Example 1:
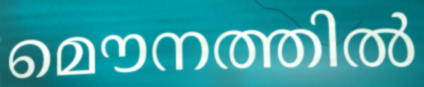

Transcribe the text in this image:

മൌനത്തിൽ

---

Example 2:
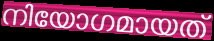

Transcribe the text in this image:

നിയോഗമായത്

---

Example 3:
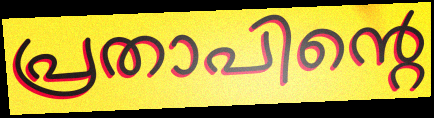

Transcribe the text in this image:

പ്രതാപിന്റെ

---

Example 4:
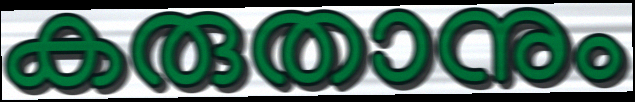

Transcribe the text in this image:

കരുതാനും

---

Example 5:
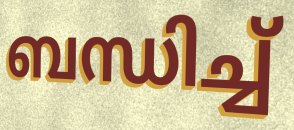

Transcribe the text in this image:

ബന്ധിച്ച്